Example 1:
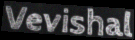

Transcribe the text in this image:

Vevishal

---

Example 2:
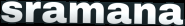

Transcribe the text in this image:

sramana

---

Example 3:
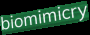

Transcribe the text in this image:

biomimicry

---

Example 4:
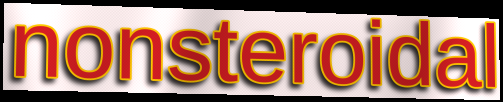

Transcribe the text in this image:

nonsteroidal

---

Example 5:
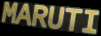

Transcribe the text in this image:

MARUTI